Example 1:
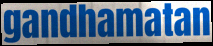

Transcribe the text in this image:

gandhamatan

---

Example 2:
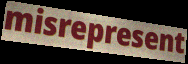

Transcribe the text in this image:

misrepresent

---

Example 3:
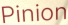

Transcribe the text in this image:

Pinion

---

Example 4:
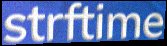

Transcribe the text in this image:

strftime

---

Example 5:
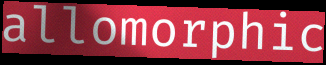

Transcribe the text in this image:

allomorphic